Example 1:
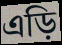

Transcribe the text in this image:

এড়ি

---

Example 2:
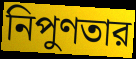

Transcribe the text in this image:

নিপুণতার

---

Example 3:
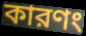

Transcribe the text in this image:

কারণং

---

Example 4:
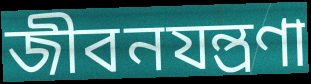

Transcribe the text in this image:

জীবনযন্ত্রণা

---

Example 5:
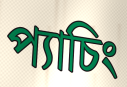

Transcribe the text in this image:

প্যাচিং